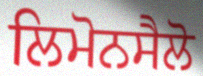
ਲਿਮੋਨਸੈਲੋ